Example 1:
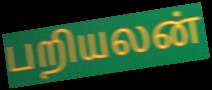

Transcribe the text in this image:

பறியலன்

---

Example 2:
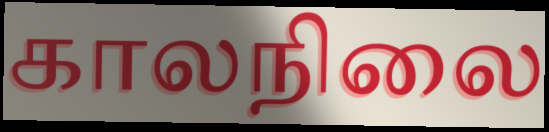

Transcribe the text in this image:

காலநிலை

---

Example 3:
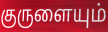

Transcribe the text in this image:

குருளையும்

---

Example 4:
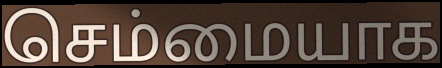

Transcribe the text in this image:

செம்மையாக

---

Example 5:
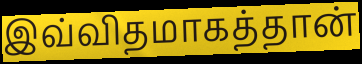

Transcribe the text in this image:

இவ்விதமாகத்தான்